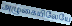
அழுகையிலேயே